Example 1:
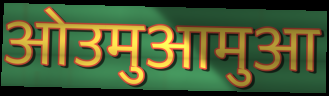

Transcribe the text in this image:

ओउमुआमुआ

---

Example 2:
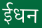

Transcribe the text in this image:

ईधन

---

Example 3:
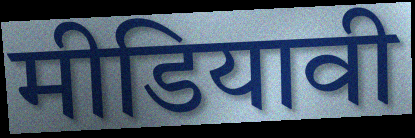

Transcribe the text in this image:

मीडियावी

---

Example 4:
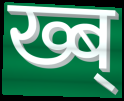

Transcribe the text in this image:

ख्ब्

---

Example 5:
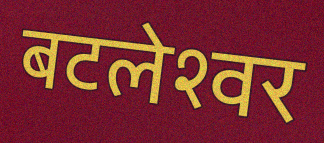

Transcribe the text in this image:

बटलेश्वर